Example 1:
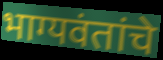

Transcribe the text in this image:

भाग्यवंतांचे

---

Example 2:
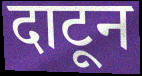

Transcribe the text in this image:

दाटून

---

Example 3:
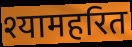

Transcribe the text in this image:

श्यामहरित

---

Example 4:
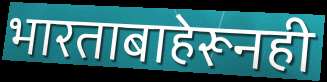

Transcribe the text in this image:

भारताबाहेरूनही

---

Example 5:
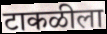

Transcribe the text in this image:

टाकळीला